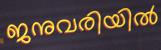
ജനുവരിയിൽ